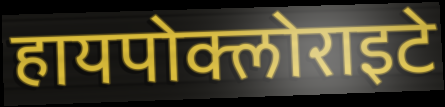
हायपोक्लोराइटे